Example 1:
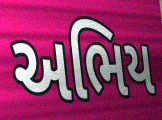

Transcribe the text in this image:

અભિય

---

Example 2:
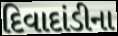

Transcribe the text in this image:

દિવાદાંડીના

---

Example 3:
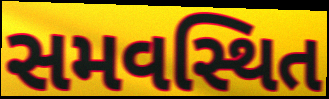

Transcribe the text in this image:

સમવસ્થિત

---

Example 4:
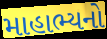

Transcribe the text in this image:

માહાભ્યનો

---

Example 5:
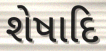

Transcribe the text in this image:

શેષાદિ